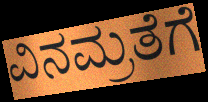
ವಿನಮ್ರತೆಗೆ